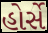
હોર્સે